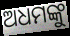
ଅଧମଙ୍କୁ